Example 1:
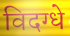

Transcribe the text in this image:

विदग्धे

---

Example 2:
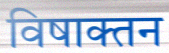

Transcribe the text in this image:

विषाक्तन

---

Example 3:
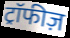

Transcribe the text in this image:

ट्रॉफीज़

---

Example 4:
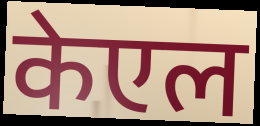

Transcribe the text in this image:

केएल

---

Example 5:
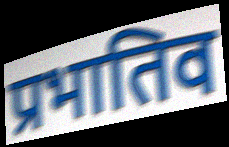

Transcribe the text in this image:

प्रभातिव